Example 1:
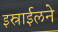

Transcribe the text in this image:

इस्राईलने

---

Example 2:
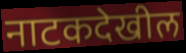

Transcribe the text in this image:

नाटकदेखील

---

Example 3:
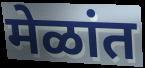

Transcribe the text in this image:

मेळांत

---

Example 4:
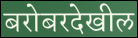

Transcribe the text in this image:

बरोबरदेखील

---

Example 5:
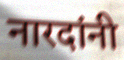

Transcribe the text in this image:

नारदांनी